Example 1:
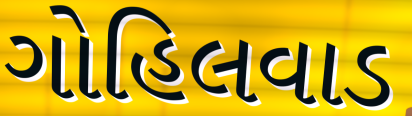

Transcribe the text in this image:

ગોહિલવાડ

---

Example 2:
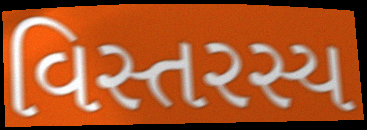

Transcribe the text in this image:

વિસ્તરસ્ય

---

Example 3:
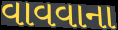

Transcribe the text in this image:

વાવવાના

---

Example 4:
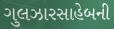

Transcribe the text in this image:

ગુલઝારસાહેબની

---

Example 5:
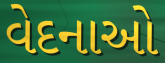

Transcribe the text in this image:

વેદનાઓ